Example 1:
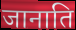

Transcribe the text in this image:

जानाति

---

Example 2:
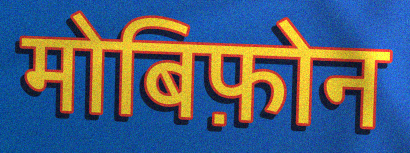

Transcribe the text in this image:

मोबिफ़ोन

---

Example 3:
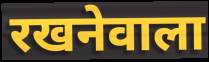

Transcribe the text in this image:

रखनेवाला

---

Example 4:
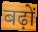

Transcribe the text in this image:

बढ़ों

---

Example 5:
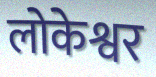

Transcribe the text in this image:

लोकेश्वर